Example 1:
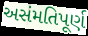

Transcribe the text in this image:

અસંમતિપૂર્ણ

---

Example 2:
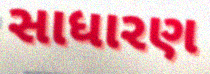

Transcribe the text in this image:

સાધારણ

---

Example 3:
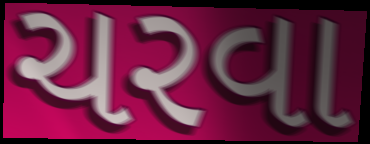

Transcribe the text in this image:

ચરવા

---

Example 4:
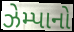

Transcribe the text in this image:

ઝેમ્પાનો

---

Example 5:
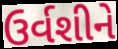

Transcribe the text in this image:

ઉર્વશીને